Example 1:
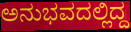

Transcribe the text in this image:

ಅನುಭವದಲ್ಲಿದ್ದ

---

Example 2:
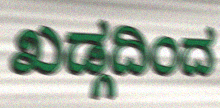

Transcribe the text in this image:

ಖಡ್ಗದಿಂದ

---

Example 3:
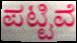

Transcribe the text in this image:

ಪಟ್ಟಿವೆ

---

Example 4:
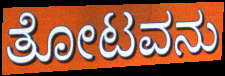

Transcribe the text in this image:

ತೋಟವನು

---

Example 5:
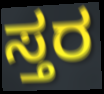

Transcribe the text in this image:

ಸ್ತರ